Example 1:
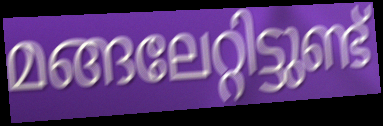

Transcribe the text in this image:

മങ്ങലേറ്റിട്ടുണ്ട്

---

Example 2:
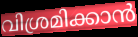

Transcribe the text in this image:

വിശ്രമിക്കാൻ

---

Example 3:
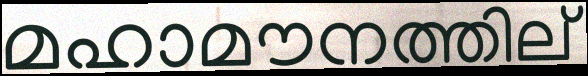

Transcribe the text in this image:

മഹാമൗനത്തില്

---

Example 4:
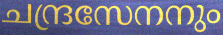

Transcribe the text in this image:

ചന്ദ്രസേനനും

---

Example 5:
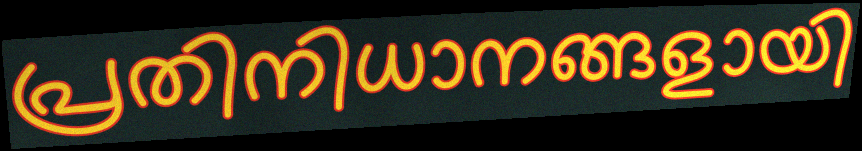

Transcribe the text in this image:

പ്രതിനിധാനങ്ങളായി